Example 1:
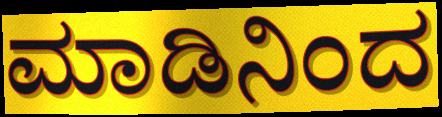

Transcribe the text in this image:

ಮಾಡಿನಿಂದ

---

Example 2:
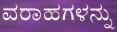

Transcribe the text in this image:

ವರಾಹಗಳನ್ನು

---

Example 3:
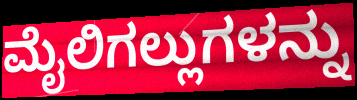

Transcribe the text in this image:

ಮೈಲಿಗಲ್ಲುಗಳನ್ನು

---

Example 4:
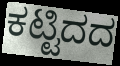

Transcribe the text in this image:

ಕಟ್ಟಿದದ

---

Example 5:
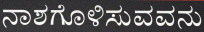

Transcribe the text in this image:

ನಾಶಗೊಳಿಸುವವನು